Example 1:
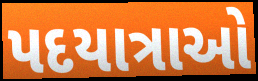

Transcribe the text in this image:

પદયાત્રાઓ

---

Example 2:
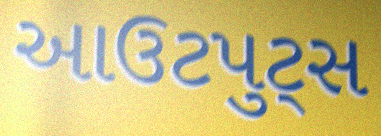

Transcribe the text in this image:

આઉટપુટ્સ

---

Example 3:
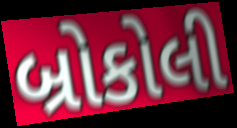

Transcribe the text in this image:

બ્રોકોલી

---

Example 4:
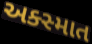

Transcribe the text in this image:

અક્સ્માત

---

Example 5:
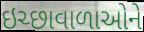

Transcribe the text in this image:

ઇચ્છાવાળાઓને